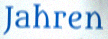
Jahren